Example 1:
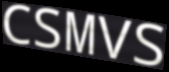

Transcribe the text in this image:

CSMVS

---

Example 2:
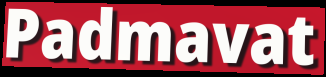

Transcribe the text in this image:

Padmavat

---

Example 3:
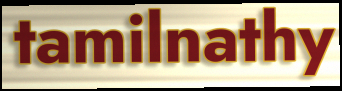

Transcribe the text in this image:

tamilnathy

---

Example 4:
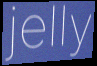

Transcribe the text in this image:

jelly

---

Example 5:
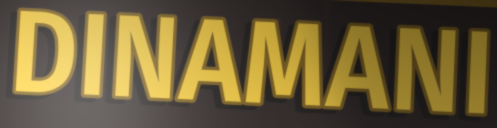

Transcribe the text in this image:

DINAMANI